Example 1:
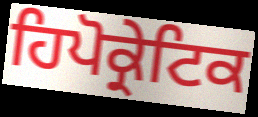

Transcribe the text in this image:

ਹਿਪੋਕ੍ਰੇਟਿਕ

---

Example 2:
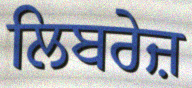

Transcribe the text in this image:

ਲਿਬਰੇਜ਼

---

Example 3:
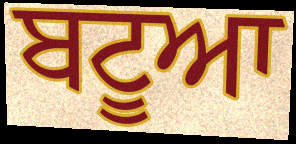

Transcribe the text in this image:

ਬਟੂਆ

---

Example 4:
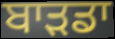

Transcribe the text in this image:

ਬਾੜਡਾ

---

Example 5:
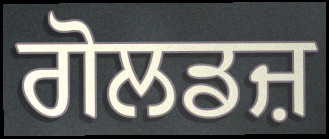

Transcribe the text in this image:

ਗੋਲਡਜ਼